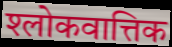
श्लोकवात्तिक